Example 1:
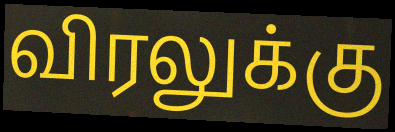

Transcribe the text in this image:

விரலுக்கு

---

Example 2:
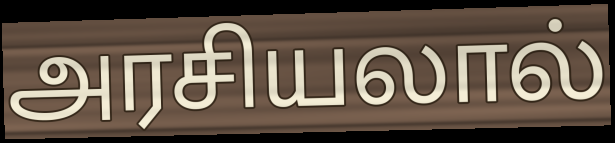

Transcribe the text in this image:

அரசியலால்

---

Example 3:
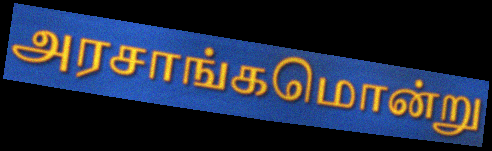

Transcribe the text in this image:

அரசாங்கமொன்று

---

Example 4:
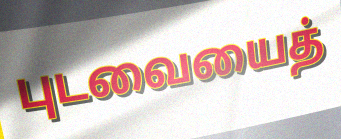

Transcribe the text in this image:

புடவையைத்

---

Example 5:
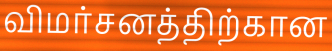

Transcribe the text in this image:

விமர்சனத்திற்கான